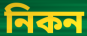
নিকন